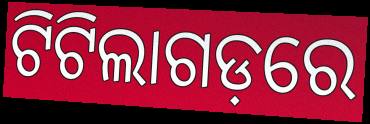
ଟିଟିଲାଗଡ଼ରେ